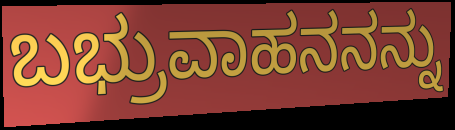
ಬಭ್ರುವಾಹನನನ್ನು